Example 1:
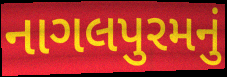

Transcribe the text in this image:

નાગલપુરમનું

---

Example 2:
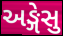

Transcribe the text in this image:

અઙ્ગેસુ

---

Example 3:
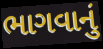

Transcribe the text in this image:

ભાગવાનું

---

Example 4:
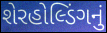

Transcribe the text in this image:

શેરહોલ્ડિંગનું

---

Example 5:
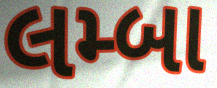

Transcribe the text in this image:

લમ્બા